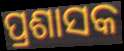
ପ୍ରଶାସକ